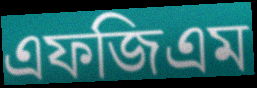
এফজিএম